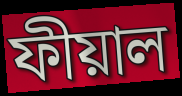
ফীয়াল